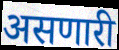
असणारी